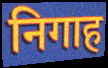
निगाह